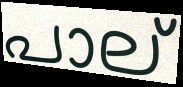
പാല്